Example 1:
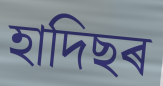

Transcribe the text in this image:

হাদিছৰ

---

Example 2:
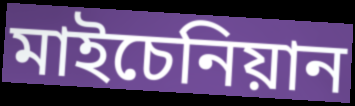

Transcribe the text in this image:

মাইচেনিয়ান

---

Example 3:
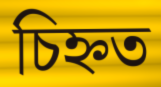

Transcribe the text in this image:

চিহ্নত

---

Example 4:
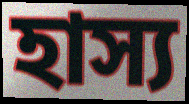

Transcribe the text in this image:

হাস্য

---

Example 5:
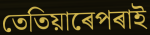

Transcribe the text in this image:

তেতিয়াৰেপৰাই